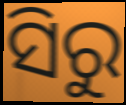
ସିରୁ